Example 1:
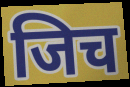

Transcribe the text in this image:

जिच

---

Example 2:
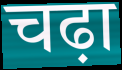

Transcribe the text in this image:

चढ़ा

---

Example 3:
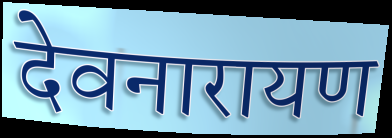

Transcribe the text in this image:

देवनारायण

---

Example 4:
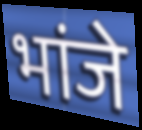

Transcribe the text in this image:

भांजे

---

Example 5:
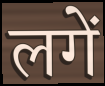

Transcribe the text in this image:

लगें